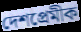
দেশপ্রেমীক